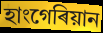
হাংগেৰিয়ান